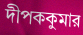
দীপককুমার